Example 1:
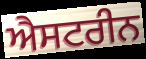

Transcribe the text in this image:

ਐਸਟਰੀਨ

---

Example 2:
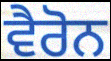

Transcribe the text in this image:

ਵੈਰੋਨ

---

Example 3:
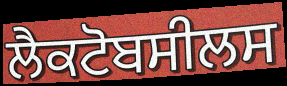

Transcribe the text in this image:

ਲੈਕਟੋਬਸੀਲਸ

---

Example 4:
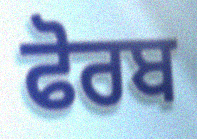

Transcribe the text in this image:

ਫੋਰਬ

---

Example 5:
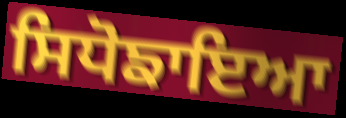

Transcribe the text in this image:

ਸਿਧੋਙਾਇਆ